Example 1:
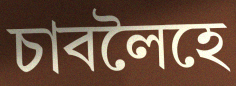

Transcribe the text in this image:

চাবলৈহে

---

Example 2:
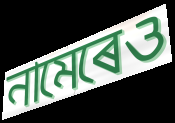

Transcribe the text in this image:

নামেৰেও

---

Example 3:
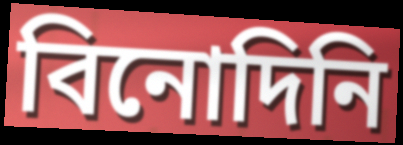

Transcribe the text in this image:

বিনোদিনি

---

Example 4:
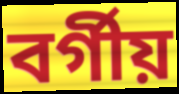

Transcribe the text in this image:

বৰ্গীয়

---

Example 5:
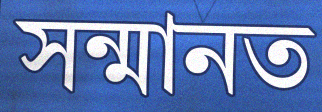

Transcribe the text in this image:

সন্মানত